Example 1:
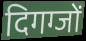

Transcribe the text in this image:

दिगग्जों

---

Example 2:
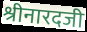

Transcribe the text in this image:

श्रीनारदजी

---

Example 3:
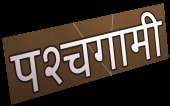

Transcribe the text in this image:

पश्चगामी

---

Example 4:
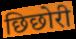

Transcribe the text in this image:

छिछोरी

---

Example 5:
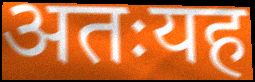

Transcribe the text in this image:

अतःयह